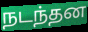
நடந்தன